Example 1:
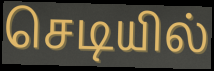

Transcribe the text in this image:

செடியில்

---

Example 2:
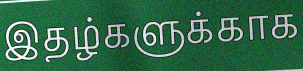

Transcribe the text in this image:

இதழ்களுக்காக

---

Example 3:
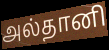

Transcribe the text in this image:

அல்தானி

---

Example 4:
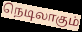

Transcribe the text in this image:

நெடிலாகும்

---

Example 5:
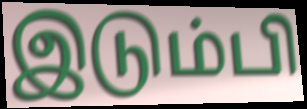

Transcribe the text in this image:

இடும்பி